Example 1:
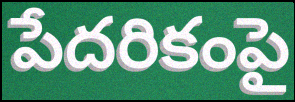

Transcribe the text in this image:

పేదరికంపై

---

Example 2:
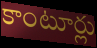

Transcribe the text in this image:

కాంటూర్లు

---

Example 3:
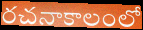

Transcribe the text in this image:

రచనాకాలంలో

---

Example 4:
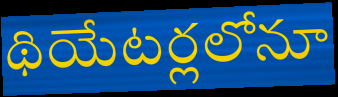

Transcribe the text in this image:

థియేటర్లలోనూ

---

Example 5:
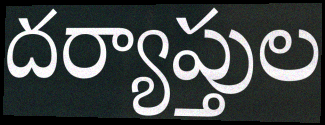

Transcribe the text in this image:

దర్యాప్తుల